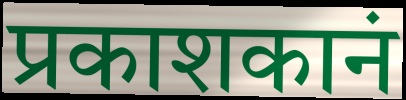
प्रकाशकानं